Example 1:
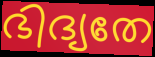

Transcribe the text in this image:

ഭിദ്യതേ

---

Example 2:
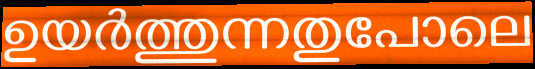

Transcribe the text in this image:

ഉയർത്തുന്നതുപോലെ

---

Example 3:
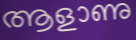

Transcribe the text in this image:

ആളാണു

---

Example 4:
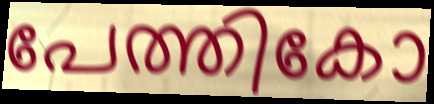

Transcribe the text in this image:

പേത്തികോ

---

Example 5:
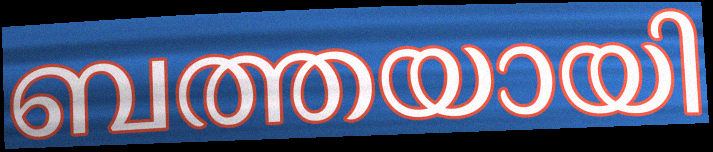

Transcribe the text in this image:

ബത്തയായി